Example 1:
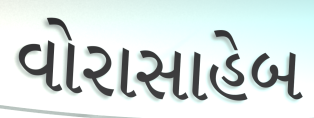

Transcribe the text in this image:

વોરાસાહેબ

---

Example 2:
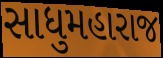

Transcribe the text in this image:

સાધુમહારાજ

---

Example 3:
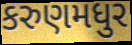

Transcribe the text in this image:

કરુણમધુર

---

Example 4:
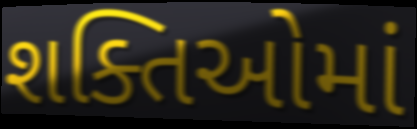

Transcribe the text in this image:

શક્તિઓમાં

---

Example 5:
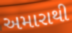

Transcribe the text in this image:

અમારાથી